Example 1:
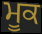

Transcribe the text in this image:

ਮੂਕ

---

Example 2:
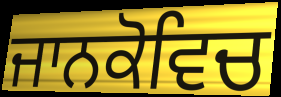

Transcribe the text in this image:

ਜਾਨਕੋਵਿਚ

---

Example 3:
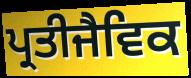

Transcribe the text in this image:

ਪ੍ਰਤੀਜੈਵਿਕ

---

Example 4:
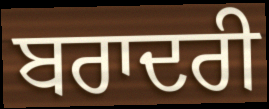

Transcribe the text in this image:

ਬਰਾਦਰੀ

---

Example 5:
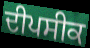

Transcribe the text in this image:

ਦੀਪਸੀਕ